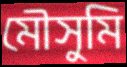
মৌসুমি